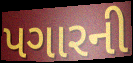
પગારની